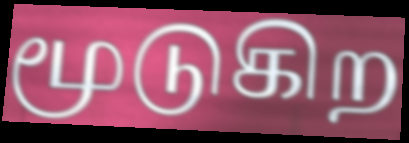
மூடுகிற